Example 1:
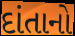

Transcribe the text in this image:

દાંતાનો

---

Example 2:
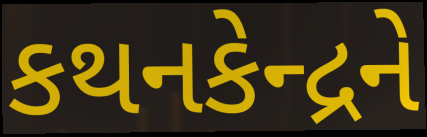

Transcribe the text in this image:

કથનકેન્દ્રને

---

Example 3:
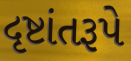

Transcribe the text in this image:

દૃષ્ટાંતરૂપે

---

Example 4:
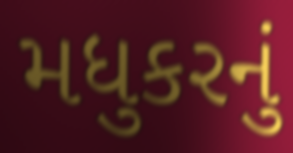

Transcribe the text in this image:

મધુકરનું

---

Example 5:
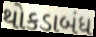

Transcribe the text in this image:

થોકડાબંધ